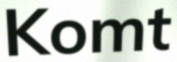
Komt